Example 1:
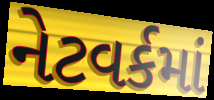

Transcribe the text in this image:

નેટવર્કમાં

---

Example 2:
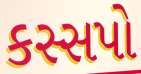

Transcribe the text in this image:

કસ્સપો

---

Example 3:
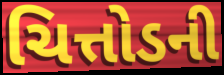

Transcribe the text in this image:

ચિત્તોડની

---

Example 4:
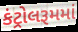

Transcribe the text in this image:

કંટ્રોલરૂમમાં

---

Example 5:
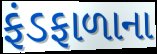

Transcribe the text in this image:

ફંડફાળાના